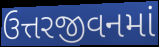
ઉત્તરજીવનમાં